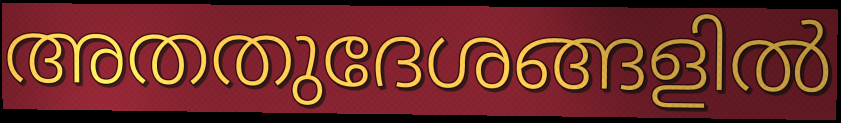
അതതുദേശങ്ങളിൽ